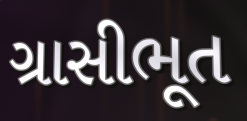
ગ્રાસીભૂત